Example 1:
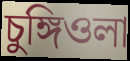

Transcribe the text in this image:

চুঙ্গিওলা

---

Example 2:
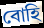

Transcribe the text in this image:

বোহি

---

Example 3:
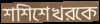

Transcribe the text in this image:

শশিশেখরকে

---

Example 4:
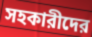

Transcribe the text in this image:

সহকারীদের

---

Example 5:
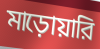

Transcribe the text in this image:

মাড়োয়ারি